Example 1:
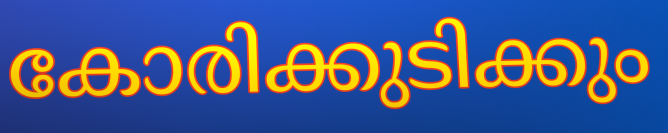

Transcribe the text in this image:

കോരിക്കുടിക്കും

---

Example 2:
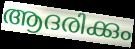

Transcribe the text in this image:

ആദരിക്കും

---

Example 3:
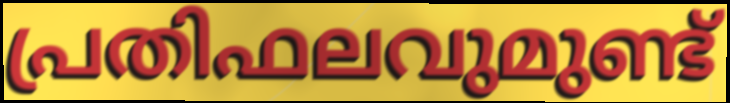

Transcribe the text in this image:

പ്രതിഫലവുമുണ്ട്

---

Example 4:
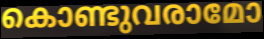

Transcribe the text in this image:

കൊണ്ടുവരാമോ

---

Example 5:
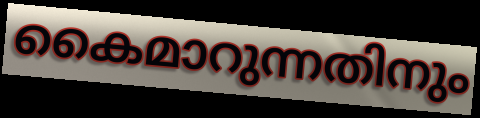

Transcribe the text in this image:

കൈമാറുന്നതിനും